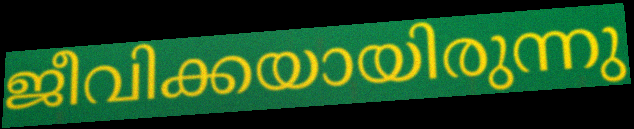
ജീവിക്കയായിരുന്നു